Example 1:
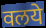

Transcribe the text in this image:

वलये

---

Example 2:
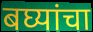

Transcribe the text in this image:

बघ्यांचा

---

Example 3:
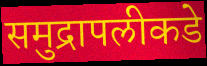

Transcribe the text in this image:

समुद्रापलीकडे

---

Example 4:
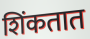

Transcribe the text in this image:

शिंकतात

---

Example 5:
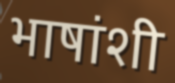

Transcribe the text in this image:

भाषांशी